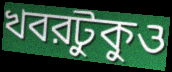
খবরটুকুও